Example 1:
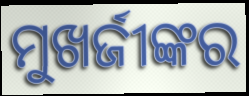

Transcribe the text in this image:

ମୁଖର୍ଜୀଙ୍କର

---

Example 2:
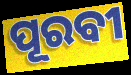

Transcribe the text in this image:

ପୂରବୀ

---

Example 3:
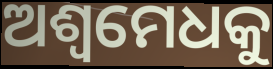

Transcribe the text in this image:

ଅଶ୍ୱମେଧକୁ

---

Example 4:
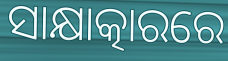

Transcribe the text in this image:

ସାକ୍ଷାତ୍କାରରେ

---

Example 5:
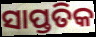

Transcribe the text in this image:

ସାପ୍ତତିକ